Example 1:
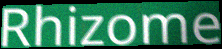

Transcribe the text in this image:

Rhizome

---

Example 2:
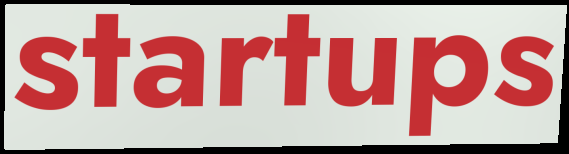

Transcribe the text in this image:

startups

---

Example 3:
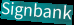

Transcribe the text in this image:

Signbank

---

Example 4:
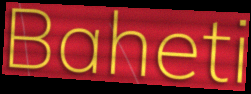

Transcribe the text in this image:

Baheti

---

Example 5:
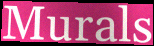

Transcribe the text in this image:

Murals